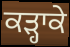
ਕੜ੍ਹਾਕੇ